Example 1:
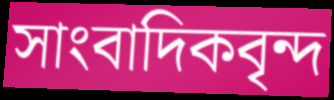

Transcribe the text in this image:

সাংবাদিকবৃন্দ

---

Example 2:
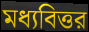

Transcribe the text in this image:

মধ্যবিত্তর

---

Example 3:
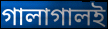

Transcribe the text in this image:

গালাগালই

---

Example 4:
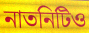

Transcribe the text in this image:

নাতনিটিও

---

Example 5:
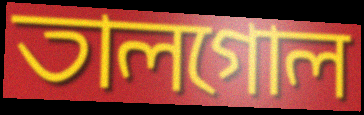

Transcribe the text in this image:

তালগোল